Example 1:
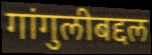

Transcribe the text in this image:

गांगुलीबद्दल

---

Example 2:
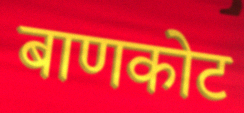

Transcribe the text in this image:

बाणकोट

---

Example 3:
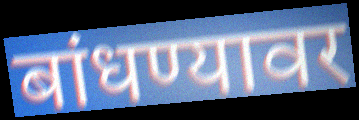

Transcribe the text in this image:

बांधण्यावर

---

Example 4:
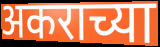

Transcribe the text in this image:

अकराच्या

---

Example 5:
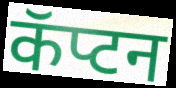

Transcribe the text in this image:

कॅप्टन